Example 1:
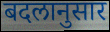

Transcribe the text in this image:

बदलानुसार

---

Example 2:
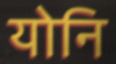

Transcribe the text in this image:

योनि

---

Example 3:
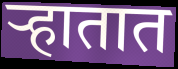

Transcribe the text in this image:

ऱ्हातात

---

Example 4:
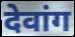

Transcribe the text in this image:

देवांग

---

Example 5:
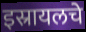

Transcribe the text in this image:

इस्रायलचे